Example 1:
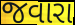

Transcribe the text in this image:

જવારા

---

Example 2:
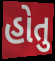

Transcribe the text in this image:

હોતુ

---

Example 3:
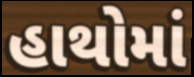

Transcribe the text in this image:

હાથોમાં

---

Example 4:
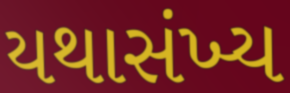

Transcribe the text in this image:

યથાસંખ્ય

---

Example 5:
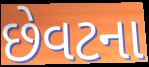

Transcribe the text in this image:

છેવટના